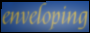
enveloping